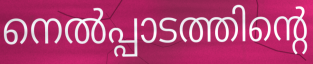
നെൽപ്പാടത്തിന്റെ